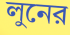
লুনের